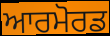
ਆਰਮੋਰਡ